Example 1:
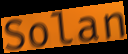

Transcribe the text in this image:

Solan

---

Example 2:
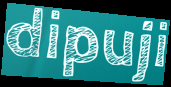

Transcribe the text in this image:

dipuji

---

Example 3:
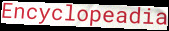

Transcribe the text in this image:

Encyclopeadia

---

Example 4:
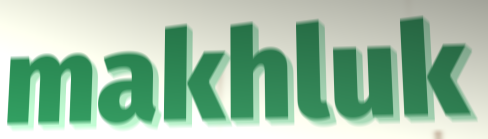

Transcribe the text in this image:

makhluk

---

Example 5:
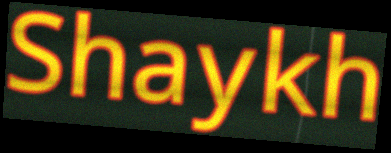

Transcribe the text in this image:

Shaykh